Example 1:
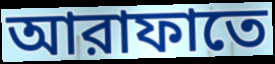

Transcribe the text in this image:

আরাফাতে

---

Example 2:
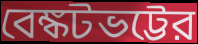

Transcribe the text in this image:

বেঙ্কটভট্টের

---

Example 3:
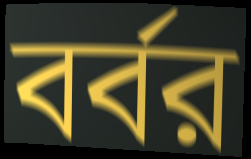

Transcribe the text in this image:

বর্বর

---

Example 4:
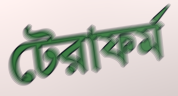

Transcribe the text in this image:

টেরাফর্ম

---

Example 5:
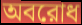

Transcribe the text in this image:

অবরোধ